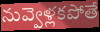
నువ్వెళ్లకపోతే